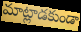
మాట్లాడకుండా